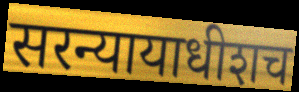
सरन्यायाधीशच